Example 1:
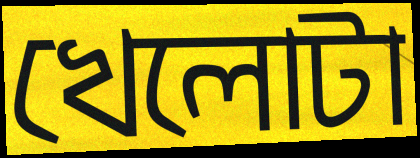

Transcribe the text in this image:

খেলোটা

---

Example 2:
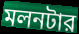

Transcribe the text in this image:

মলনটার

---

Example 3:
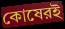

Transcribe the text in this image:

কোষেরই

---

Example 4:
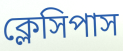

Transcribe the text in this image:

ক্লেসিপাস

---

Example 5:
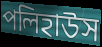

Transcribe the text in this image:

পলিহাউস